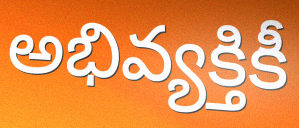
అభివ్యక్తికీ